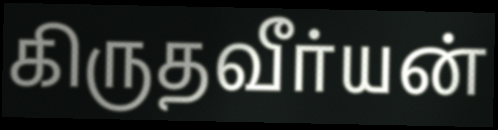
கிருதவீர்யன்